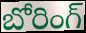
బోరింగ్